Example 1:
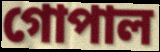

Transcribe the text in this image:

গোপাল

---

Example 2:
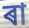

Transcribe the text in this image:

ৰা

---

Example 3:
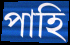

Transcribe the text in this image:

পাহি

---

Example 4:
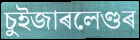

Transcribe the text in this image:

চুইজাৰলেণ্ডৰ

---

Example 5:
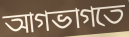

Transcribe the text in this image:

আগভাগতে